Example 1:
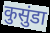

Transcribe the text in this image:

कुसुंडा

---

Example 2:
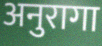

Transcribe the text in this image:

अनुरागा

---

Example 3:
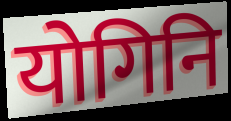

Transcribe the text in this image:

योगिनि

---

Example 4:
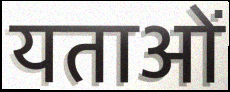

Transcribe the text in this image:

यताओं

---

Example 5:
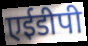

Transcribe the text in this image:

एईडीपी